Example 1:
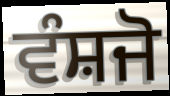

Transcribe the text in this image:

ਵੰਸ਼ਜੋ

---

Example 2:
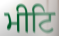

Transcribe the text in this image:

ਮੀਟਿ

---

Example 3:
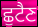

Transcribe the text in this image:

ਛੁਟੈਣ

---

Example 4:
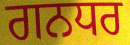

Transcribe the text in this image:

ਗਨਧਰ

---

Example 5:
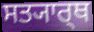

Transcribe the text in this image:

ਸਤ੍ਯਾਰ੍ਥ